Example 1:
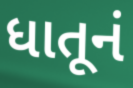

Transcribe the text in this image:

ધાતૂનં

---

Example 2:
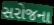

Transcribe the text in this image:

સરોજના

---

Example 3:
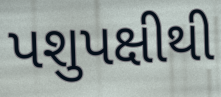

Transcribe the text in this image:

પશુપક્ષીથી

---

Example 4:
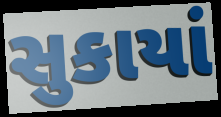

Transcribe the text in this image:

સુકાયાં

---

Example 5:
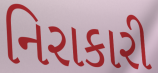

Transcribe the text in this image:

નિરાકારી